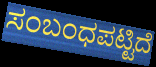
ಸಂಬಂಧಪಟ್ಟಿದೆ